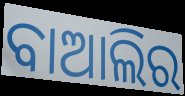
ବାଆଲିର